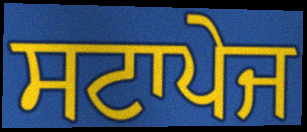
ਸਟਾਪੇਜ